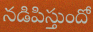
నడిపిస్తుందో